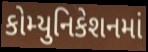
કોમ્યુનિકેશનમાં